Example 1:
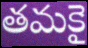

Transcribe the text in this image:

తమకై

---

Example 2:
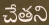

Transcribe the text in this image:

చేతని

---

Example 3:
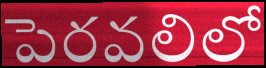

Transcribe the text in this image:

పెరవలిలో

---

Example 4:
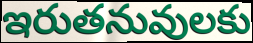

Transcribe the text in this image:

ఇరుతనువులకు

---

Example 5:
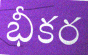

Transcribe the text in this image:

భీకర